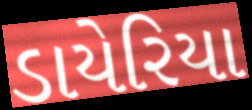
ડાયેરિયા